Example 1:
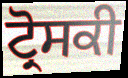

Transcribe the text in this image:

ਟ੍ਰੋਸਕੀ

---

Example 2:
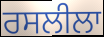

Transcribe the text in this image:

ਰਸਲੀਲਾ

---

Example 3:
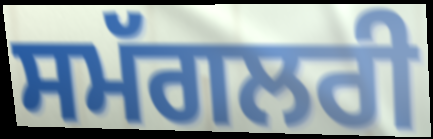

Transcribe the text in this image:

ਸਮੱਗਲਰੀ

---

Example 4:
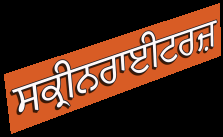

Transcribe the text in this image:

ਸਕ੍ਰੀਨਰਾਈਟਰਜ਼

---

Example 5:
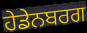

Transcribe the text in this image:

ਹੇਡੇਨਬਰਗ